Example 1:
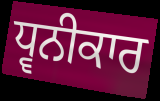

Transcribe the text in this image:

ਧ੍ਵਨੀਕਾਰ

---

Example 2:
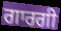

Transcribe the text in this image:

ਗਾਰਗੀ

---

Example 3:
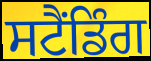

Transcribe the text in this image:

ਸਟੈਂਡਿੰਗ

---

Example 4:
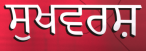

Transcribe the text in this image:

ਸੁਖਵਰਸ਼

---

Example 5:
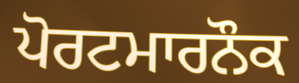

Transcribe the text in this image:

ਪੋਰਟਮਾਰਨੌਕ